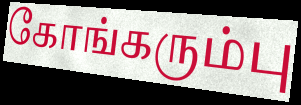
கோங்கரும்பு